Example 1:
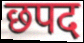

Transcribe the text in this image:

छपद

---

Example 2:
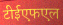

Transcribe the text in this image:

टीईएफएल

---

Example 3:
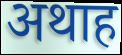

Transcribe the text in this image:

अथाह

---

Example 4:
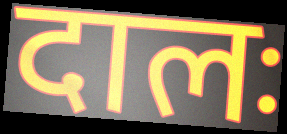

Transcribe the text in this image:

दालः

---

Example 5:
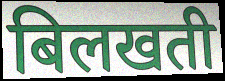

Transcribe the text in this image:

बिलखती